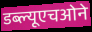
डब्ल्यूएचओने